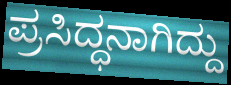
ಪ್ರಸಿದ್ಧನಾಗಿದ್ದು